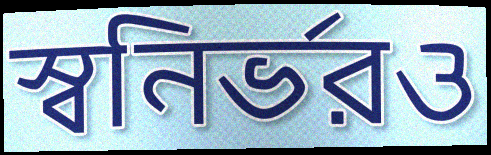
স্বনির্ভরও